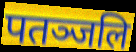
पतञ्जलि